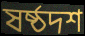
ষষ্ঠদশ